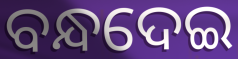
ବନ୍ଧଦେଇ